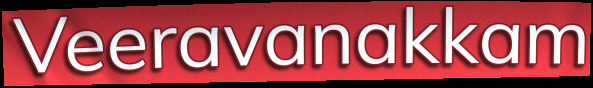
Veeravanakkam